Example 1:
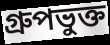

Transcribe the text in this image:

গ্রুপভুক্ত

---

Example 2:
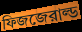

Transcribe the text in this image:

ফিজজেরাল্ড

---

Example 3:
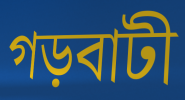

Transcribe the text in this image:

গড়বাটী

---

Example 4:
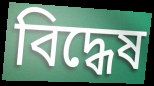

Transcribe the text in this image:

বিদ্ধেষ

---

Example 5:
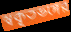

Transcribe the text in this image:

স্বকৃতভঙ্গের